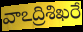
వాఽద్రిశిఖరే